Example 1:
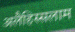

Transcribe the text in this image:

अलैहिस्सलाम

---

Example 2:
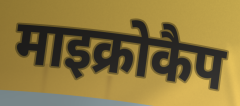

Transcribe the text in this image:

माइक्रोकैप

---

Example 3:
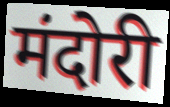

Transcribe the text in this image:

मंदोरी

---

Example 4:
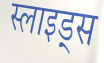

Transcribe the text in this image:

स्लाइड्स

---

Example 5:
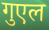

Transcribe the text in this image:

गुएल